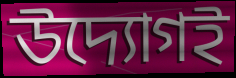
উদ্যোগই